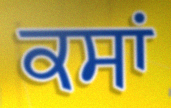
ਕਸਾਂ